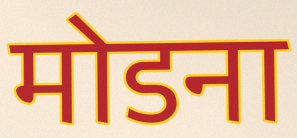
मोडना